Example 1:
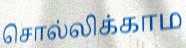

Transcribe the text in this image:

சொல்லிக்காம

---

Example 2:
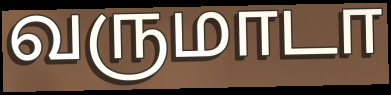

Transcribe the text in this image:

வருமாடா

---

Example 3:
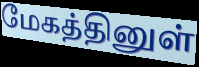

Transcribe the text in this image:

மேகத்தினுள்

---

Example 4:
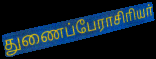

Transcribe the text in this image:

துணைப்பேராசிரியர்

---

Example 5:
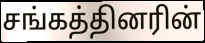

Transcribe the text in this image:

சங்கத்தினரின்